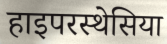
हाइपरस्थेसिया